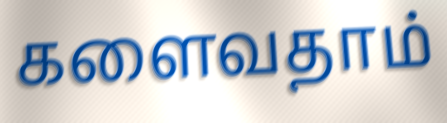
களைவதாம்